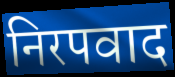
निरपवाद